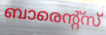
ബാരെന്റ്സ്